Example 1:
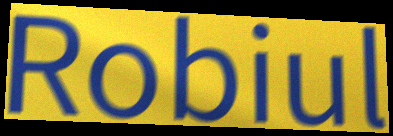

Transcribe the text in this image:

Robiul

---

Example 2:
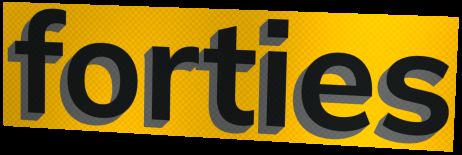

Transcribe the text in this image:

forties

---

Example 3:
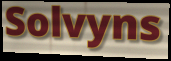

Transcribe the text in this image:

Solvyns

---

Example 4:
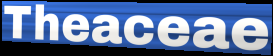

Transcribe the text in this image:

Theaceae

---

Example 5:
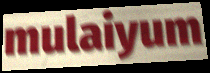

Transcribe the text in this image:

mulaiyum